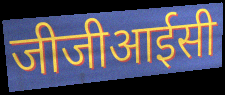
जीजीआईसी